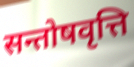
सन्तोषवृत्ति